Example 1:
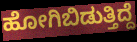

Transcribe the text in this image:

ಹೋಗಿಬಿಡುತ್ತಿದ್ದೆ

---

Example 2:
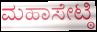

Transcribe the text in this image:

ಮಹಾಸೇಟ್ಠಿ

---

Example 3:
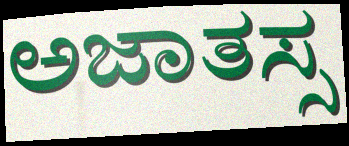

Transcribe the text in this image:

ಅಜಾತಸ್ಸ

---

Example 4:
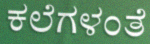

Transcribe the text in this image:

ಕಲೆಗಳಂತೆ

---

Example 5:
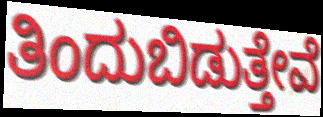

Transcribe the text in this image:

ತಿಂದುಬಿಡುತ್ತೇವೆ